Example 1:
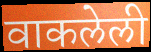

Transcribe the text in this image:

वाकलेली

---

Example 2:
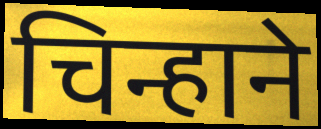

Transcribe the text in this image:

चिन्हाने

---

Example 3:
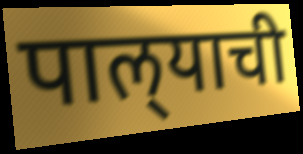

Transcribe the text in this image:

पाल्याची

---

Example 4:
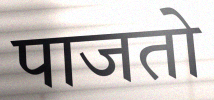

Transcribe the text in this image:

पाजतो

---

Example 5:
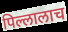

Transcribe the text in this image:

पिल्लालाच